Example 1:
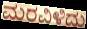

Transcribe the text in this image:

ಮರವಿಳಿದು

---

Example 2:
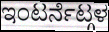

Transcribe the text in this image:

ಇಂಟರ್ನೆಟ್ಗಳ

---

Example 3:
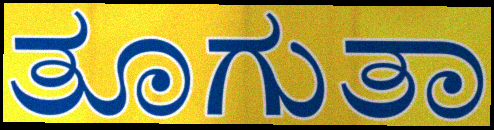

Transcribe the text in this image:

ತೂಗುತಾ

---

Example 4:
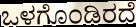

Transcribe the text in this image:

ಒಳಗೊಂಡಿರದೆ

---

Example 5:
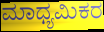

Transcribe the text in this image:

ಮಾಧ್ಯಮಿಕರ